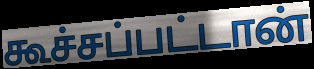
கூச்சப்பட்டான்